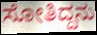
ಸೋತಿದ್ದನು